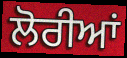
ਲੋਰੀਆਂ